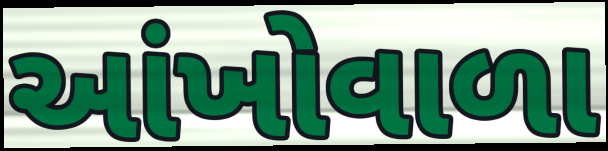
આંખોવાળા